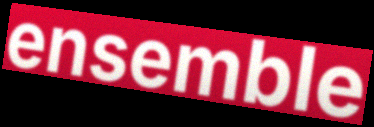
ensemble